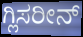
ಗ್ಲಿಸರೀನ್